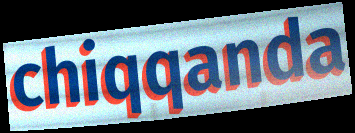
chiqqanda